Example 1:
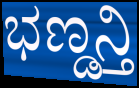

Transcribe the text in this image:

ಭಣ್ಡನ್ತಿ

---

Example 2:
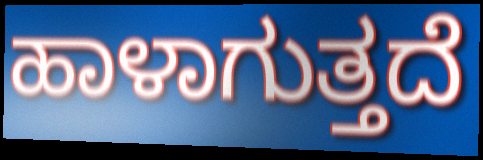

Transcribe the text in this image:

ಹಾಳಾಗುತ್ತದೆ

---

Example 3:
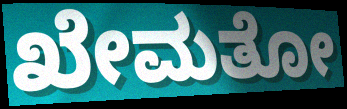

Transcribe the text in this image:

ಖೇಮತೋ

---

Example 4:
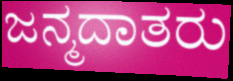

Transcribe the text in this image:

ಜನ್ಮದಾತರು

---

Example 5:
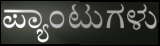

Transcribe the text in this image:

ಪ್ಯಾಂಟುಗಳು